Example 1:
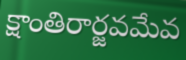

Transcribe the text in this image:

క్షాంతిరార్జవమేవ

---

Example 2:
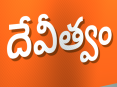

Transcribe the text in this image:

దేవీత్వం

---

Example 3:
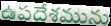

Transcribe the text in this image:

ఉపదేశమును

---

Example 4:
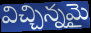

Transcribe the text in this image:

విచ్చిన్నమై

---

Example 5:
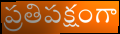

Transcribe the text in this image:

ప్రతిపక్షంగా